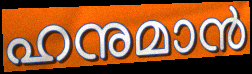
ഹനുമാൻ